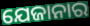
ଯେଜାନାର